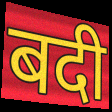
बदी